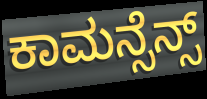
ಕಾಮನ್ಸೆನ್ಸ್